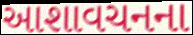
આશાવચનના